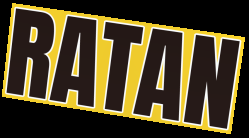
RATAN